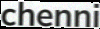
chenni